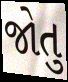
જોતુ